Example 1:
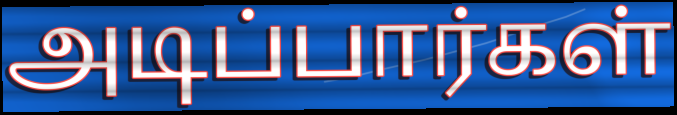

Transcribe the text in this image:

அடிப்பார்கள்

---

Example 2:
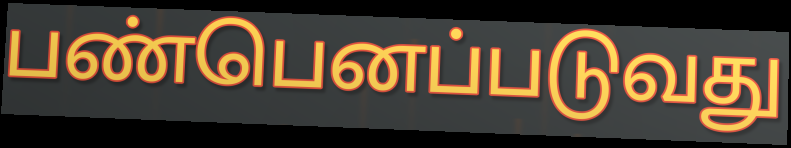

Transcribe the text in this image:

பண்பெனப்படுவது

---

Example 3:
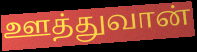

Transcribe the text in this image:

ஊத்துவான்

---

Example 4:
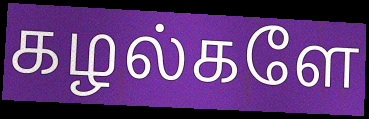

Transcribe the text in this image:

கழல்களே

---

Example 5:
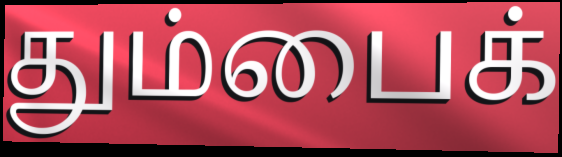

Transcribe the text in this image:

தும்பைக்